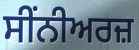
ਸੀਂਨੀਅਰਜ਼